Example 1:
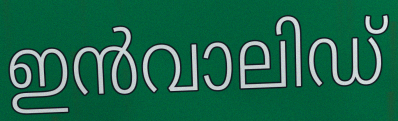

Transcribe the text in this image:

ഇൻവാലിഡ്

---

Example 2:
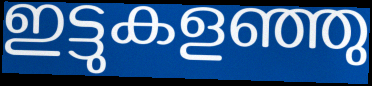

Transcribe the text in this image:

ഇട്ടുകളഞ്ഞു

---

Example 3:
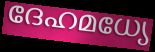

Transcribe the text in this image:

ദേഹമധ്യേ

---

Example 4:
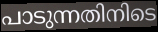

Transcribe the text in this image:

പാടുന്നതിനിടെ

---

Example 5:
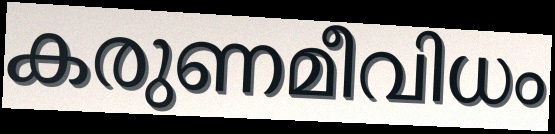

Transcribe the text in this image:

കരുണമീവിധം